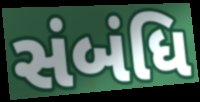
સંબંધિ